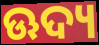
ଊଦ୍ୟ